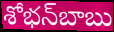
శోభన్‌బాబు